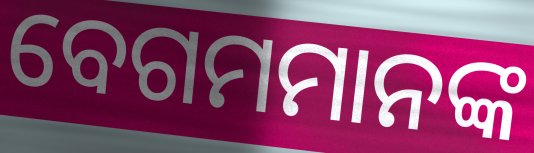
ବେଗମମାନଙ୍କ